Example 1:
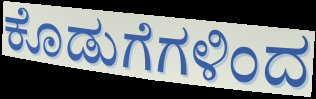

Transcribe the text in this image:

ಕೊಡುಗೆಗಳಿಂದ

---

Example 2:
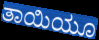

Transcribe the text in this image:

ತಾಯಿಯೂ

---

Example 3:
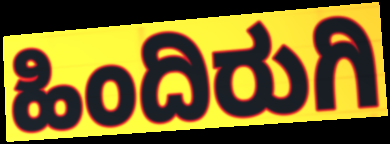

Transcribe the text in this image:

ಹಿಂದಿರುಗಿ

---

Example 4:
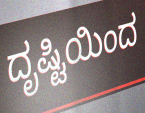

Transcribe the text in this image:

ದೃಷ್ಟಿಯಿಂದ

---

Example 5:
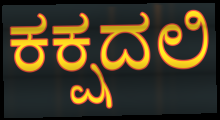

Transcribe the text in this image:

ಕಕ್ಷದಲಿ